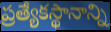
ప్రత్యేకస్థానాన్ని